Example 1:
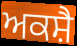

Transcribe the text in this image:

ਅਕਸ਼ੈ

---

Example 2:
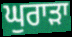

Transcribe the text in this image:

ਘੁਰਾੜਾ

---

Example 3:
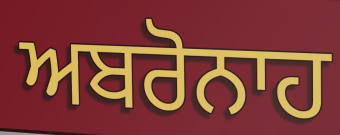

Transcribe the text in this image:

ਅਬਰੋਨਾਹ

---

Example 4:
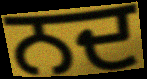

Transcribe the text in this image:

ਨਦ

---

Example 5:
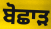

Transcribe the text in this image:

ਬੋਛਾੜ